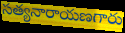
సత్యనారాయణగారు